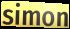
simon